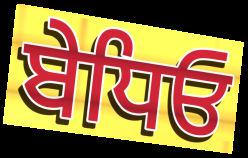
ਬੇਧਿਓ